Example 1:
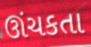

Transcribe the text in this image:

ઊંચકતા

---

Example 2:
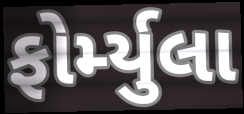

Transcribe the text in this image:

ફોર્મ્યુલા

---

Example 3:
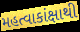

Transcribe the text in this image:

મહત્વાકાંક્ષાથી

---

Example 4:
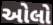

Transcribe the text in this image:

ઓલો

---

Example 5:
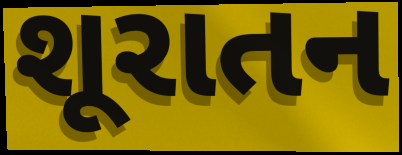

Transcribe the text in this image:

શૂરાતન